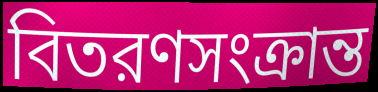
বিতরণসংক্রান্ত